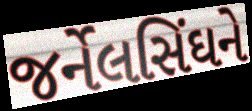
જર્નેલસિંઘને